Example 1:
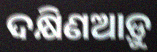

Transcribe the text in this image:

ଦକ୍ଷିଣଆଡ଼ୁ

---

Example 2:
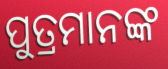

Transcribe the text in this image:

ପୁତ୍ରମାନଙ୍କ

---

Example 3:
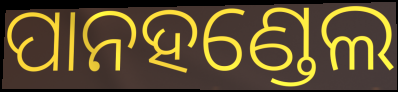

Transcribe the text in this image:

ପାନହଣ୍ଡେଲ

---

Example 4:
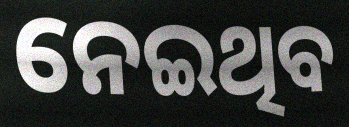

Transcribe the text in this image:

ନେଇଥିବ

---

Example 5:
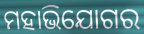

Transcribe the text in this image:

ମହାଭିଯୋଗର